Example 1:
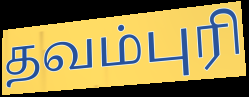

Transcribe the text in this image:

தவம்புரி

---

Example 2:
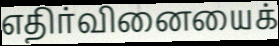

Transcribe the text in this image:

எதிர்வினையைக்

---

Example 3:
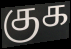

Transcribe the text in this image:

குக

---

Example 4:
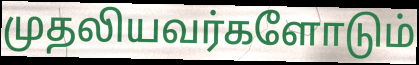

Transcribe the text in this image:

முதலியவர்களோடும்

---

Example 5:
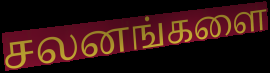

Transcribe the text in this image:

சலனங்களை